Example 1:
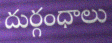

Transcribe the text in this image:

దుర్గంధాలు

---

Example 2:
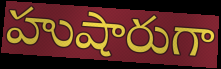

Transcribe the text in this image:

హుషారుగా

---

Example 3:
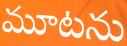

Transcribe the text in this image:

మూటను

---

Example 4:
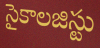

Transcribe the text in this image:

సైకాలజిస్టు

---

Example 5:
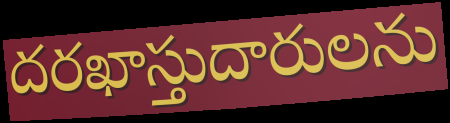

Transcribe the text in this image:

దరఖాస్తుదారులను